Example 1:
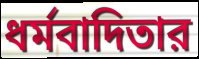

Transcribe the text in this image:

ধর্মবাদিতার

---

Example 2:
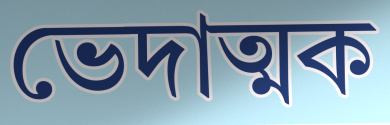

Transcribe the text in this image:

ভেদাত্মক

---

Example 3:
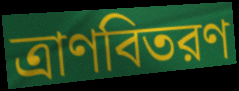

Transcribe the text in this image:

ত্রাণবিতরণ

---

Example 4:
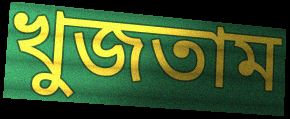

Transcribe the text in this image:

খুজতাম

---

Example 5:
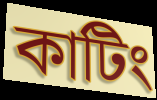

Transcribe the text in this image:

কাটিং